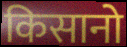
किसानो